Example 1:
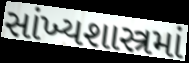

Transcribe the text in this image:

સાંખ્યશાસ્ત્રમાં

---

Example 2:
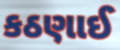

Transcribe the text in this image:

કઠણાઈ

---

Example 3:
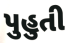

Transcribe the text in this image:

પુહુતી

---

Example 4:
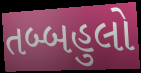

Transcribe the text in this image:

તબ્બહુલો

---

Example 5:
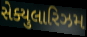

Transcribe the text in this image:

સેક્યુલારિઝમ